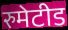
रुमेटीड